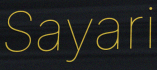
Sayari